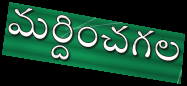
మర్దించగల